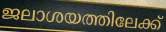
ജലാശയത്തിലേക്ക്